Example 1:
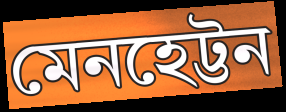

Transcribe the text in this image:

মেনহেট্টন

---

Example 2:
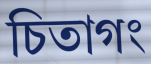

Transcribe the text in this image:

চিতাগং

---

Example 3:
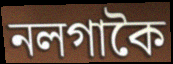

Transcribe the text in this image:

নলগাকৈ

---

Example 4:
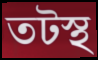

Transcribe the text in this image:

তটস্থ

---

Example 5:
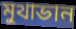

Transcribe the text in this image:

মুথাভান